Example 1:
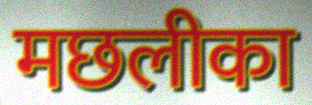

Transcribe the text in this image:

मछलीका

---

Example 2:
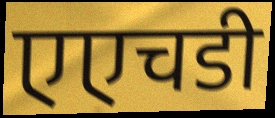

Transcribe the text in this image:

एएचडी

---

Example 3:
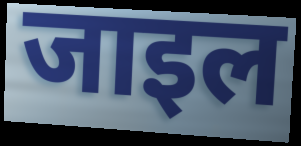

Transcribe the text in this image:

जाइल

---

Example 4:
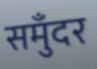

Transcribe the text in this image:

समुँदर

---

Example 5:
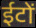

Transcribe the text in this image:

ईटों